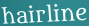
hairline